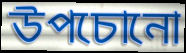
উপচোনো